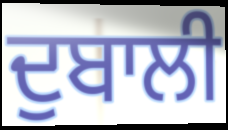
ਦੁਬਾਲੀ